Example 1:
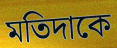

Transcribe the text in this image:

মতিদাকে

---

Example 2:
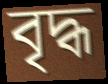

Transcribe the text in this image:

বৃদ্ধ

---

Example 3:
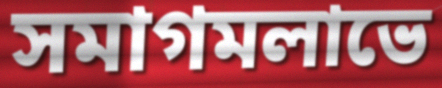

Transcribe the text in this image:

সমাগমলাভে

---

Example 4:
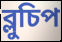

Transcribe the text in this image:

ব্লুচিপ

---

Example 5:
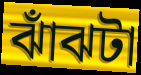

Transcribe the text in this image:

ঝাঁঝটা